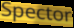
Spector